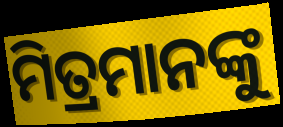
ମିତ୍ରମାନଙ୍କୁ